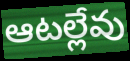
ఆటల్లేవు